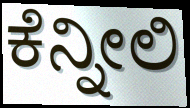
ಕೆನ್ನೀಲಿ